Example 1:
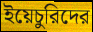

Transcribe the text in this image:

ইয়েচুরিদের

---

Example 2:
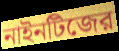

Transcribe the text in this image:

নাইনটিজের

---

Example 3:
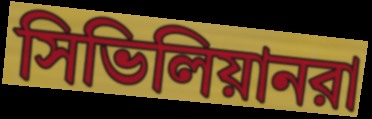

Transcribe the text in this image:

সিভিলিয়ানরা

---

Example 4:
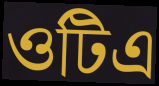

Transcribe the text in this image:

ওটিএ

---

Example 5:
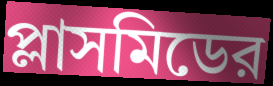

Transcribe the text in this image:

প্লাসমিডের